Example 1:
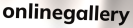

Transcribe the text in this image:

onlinegallery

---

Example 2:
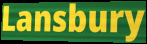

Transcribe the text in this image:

Lansbury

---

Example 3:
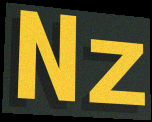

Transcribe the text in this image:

Nz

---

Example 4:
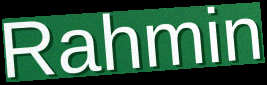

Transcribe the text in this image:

Rahmin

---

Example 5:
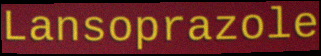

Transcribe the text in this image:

Lansoprazole